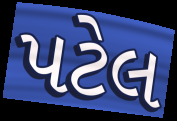
પટેલ